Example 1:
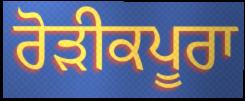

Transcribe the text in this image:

ਰੋੜੀਕਪੂਰਾ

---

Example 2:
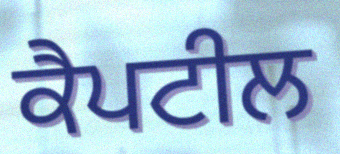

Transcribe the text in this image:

ਕੈਪਟੀਲ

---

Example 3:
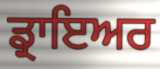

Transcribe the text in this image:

ਡ੍ਰਾਇਅਰ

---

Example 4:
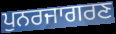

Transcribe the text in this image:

ਪੁਨਰਜਾਗਰਣ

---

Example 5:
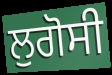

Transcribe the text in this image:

ਲੁਗੋਸੀ